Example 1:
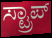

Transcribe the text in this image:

ಸ್ಟ್ರಾಪ್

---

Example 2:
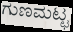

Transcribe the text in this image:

ಗುಣಮಟ್ಟ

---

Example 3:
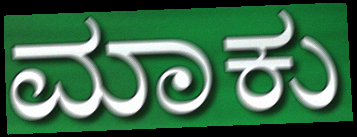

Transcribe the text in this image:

ಮಾಕು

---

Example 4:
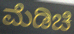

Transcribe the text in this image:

ಮೆಡಿಚಿ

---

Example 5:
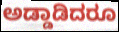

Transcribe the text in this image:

ಅಡ್ಡಾಡಿದರೂ